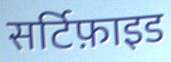
सर्टिफ़ाइड